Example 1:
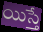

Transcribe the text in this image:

యిస్తే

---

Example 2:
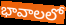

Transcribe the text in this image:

భావాలలో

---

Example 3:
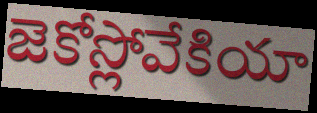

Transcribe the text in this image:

జెకోస్లోవేకియా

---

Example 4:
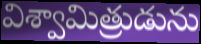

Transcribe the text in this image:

విశ్వామిత్రుడును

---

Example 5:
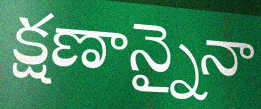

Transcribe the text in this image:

క్షణాన్నైనా